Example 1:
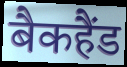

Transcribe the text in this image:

बैकहैंड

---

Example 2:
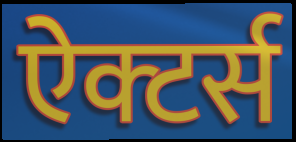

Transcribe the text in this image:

ऐक्‍टर्स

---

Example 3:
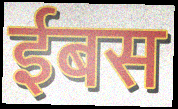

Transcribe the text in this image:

ईबस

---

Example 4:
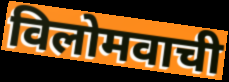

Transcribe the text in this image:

विलोमवाची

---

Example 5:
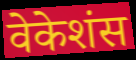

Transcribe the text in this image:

वेकेशंस